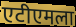
एटीएमला